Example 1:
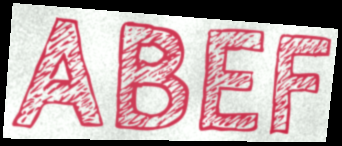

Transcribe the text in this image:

ABEF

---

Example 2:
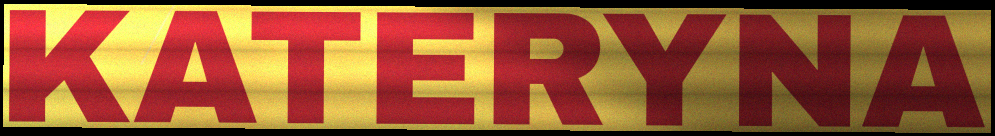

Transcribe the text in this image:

KATERYNA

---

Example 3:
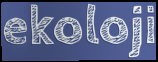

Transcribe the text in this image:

ekoloji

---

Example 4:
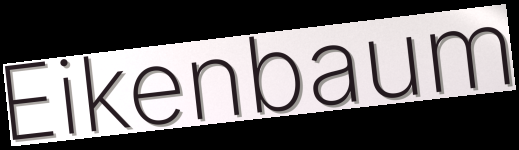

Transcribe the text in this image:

Eikenbaum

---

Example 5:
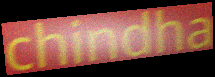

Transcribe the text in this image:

chindha